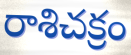
రాశిచక్రం